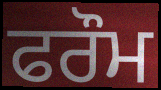
ਫਰੌਮ